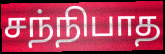
சந்நிபாத